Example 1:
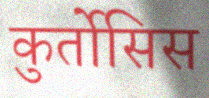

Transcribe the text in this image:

कुर्तोसिस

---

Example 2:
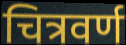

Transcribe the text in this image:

चित्रवर्ण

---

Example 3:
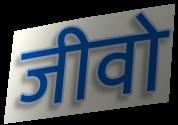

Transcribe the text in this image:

जीवो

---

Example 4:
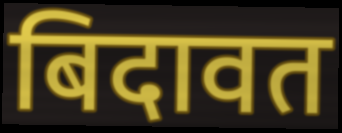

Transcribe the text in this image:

बिदावत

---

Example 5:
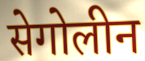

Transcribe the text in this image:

सेगोलीन